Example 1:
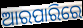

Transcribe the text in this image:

ଆରପାରିରେ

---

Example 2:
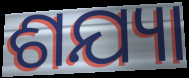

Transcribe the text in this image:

ଶଯ୍ୟା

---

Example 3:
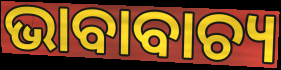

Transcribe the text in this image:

ଭାବାବାଚ୍ୟ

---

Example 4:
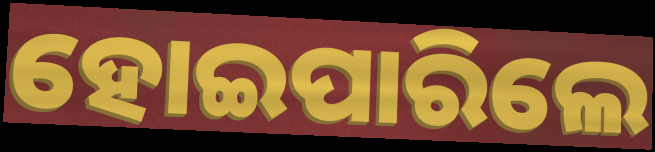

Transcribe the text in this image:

ହୋଇପାରିଲେ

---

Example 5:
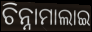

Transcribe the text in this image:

ଚିନ୍ନାମାଲାଇ